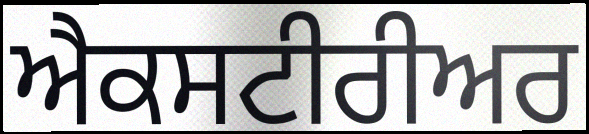
ਐਕਸਟੀਰੀਅਰ